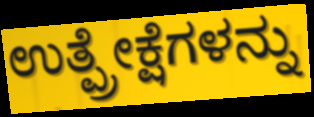
ಉತ್ಪ್ರೇಕ್ಷೆಗಳನ್ನು